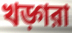
খড়্গরা